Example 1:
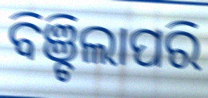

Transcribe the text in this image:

ବିଞ୍ଚିଲାପରି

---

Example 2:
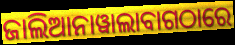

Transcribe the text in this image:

ଜାଲିଆନାୱାଲାବାଗଠାରେ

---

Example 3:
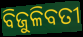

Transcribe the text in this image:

ବିଜୁଳିବତୀ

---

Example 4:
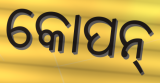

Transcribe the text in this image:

କୋପନ୍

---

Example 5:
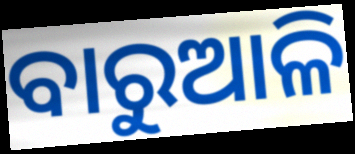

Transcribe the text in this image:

ବାରୁଆଳି